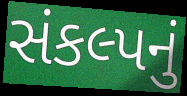
સંકલ્પનું